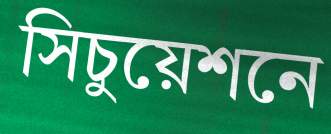
সিচুয়েশনে